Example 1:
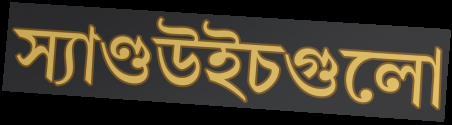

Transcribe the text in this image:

স্যাণ্ডউইচগুলো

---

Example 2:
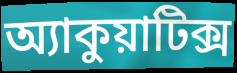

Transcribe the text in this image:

অ্যাকুয়াটিক্স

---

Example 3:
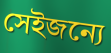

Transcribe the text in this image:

সেইজন্যে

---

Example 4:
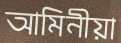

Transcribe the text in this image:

আমিনীয়া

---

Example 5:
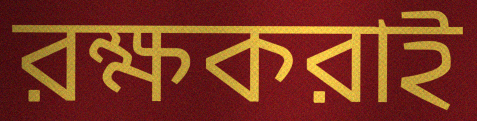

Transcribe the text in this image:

রক্ষকরাই